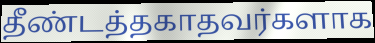
தீண்டத்தகாதவர்களாக